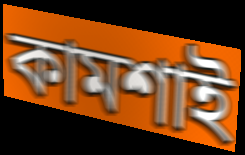
কামশাই